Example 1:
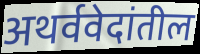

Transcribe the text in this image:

अथर्ववेदांतील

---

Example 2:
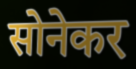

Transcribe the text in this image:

सोनेकर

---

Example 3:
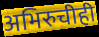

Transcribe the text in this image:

अभिरुचीही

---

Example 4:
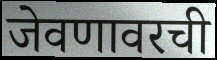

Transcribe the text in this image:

जेवणावरची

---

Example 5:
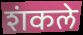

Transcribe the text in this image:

शंकले